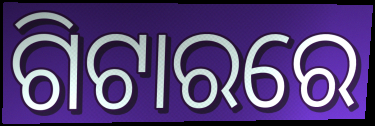
ଗିଟାରରେ